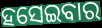
ହସେଇବାର